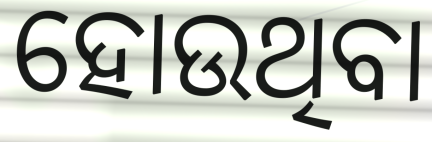
ହୋଉଥିବା